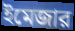
ইমেজার